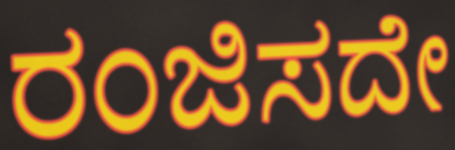
ರಂಜಿಸದೇ